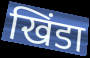
खिंडा